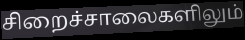
சிறைச்சாலைகளிலும்